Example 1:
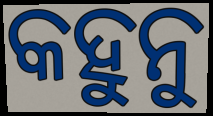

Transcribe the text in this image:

କହୁନୁ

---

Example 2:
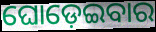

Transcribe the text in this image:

ଘୋଡ଼େଇବାର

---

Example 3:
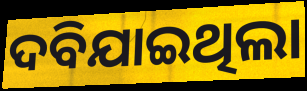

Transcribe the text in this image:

ଦବିଯାଇଥିଲା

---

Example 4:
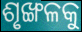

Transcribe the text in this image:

ଶୃଙ୍ଖଳକୁ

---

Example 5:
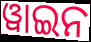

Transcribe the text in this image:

ୱାଇନ